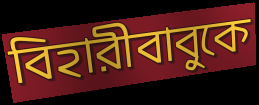
বিহারীবাবুকে